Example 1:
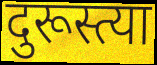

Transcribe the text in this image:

दुरूस्त्या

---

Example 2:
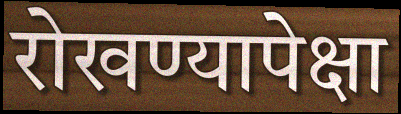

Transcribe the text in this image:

रोखण्यापेक्षा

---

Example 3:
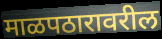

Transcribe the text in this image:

माळपठारावरील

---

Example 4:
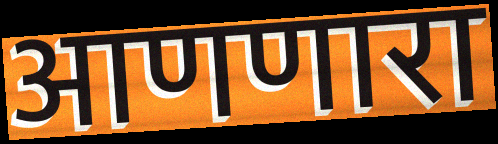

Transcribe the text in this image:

आणणारा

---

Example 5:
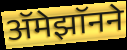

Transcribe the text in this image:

ॲमेझॉनने